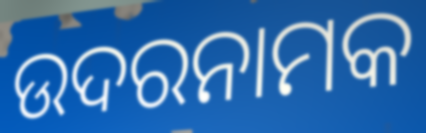
ଉଦରନାମକ